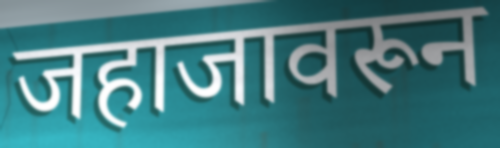
जहाजावरून